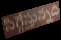
సిగ్గేస్తున్నది